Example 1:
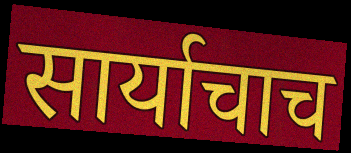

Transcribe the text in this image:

सार्याचाच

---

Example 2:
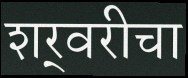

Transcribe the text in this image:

शर्वरीचा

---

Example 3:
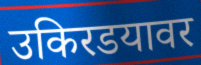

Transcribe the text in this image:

उकिरडयावर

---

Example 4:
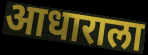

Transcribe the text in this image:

आधाराला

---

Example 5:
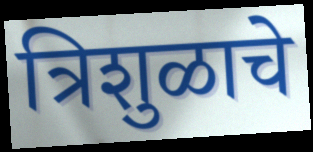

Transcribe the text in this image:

त्रिशुळाचे